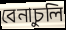
বেনাচুলি